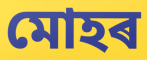
মোহৰ